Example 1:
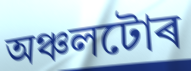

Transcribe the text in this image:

অঞ্চলটোৰ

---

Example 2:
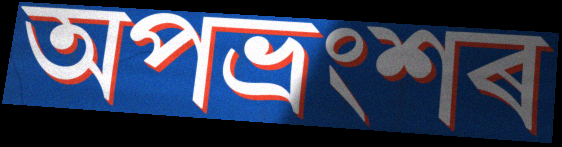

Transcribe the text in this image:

অপভ্ৰংশৰ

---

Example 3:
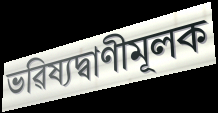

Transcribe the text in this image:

ভৱিষ্যদ্বাণীমূলক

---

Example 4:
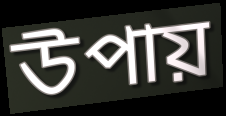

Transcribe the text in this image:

উপায়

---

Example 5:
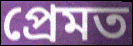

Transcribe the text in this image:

প্ৰেমত